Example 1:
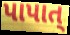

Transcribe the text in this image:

પાપાત્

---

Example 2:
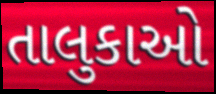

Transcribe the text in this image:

તાલુકાઓ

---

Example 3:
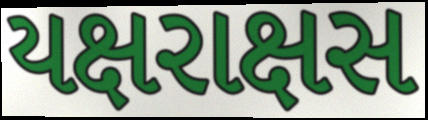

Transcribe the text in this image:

યક્ષરાક્ષસ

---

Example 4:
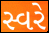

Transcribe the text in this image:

સ્વરે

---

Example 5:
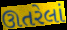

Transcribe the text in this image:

ઊતરેલાં